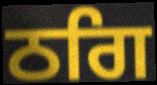
ਠਗਿ